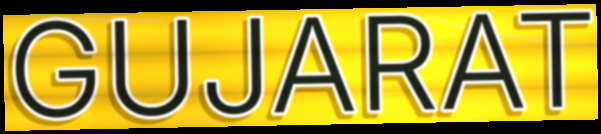
GUJARAT